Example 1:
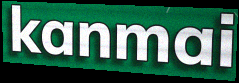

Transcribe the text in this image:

kanmai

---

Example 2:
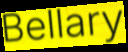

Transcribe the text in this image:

Bellary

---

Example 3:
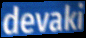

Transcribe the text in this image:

devaki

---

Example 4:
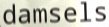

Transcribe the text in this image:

damsels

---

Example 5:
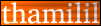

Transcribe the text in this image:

thamilil